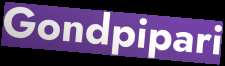
Gondpipari